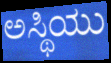
ಅಸ್ಥಿಯು